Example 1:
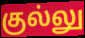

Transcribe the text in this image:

குல்லு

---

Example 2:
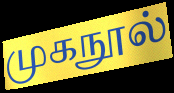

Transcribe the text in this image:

முகநூல்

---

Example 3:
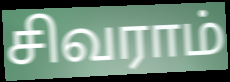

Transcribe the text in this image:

சிவராம்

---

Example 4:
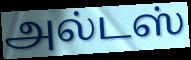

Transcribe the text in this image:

அல்டஸ்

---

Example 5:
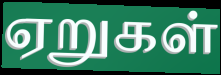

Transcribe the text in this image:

ஏறுகள்